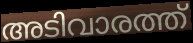
അടിവാരത്ത്